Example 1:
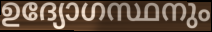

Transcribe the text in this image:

ഉദ്യോഗസ്ഥനും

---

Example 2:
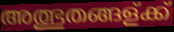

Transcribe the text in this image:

അത്ഭുതങ്ങള്ക്ക്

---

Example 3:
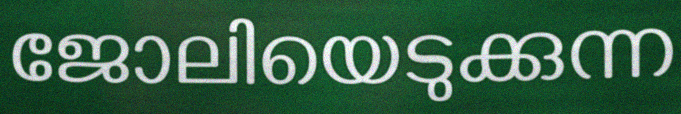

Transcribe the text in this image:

ജോലിയെടുക്കുന്ന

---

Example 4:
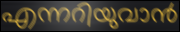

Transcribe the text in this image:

എന്നറിയുവാൻ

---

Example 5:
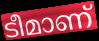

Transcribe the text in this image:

ടീമാണ്